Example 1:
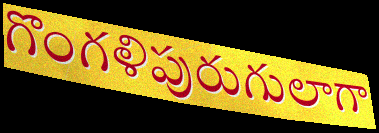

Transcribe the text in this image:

గొంగళిపురుగులాగా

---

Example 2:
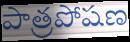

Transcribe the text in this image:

పాత్రపోషణ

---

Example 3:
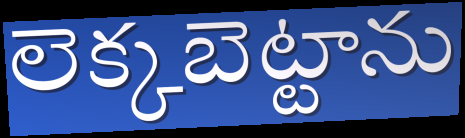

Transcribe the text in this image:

లెక్కబెట్టాను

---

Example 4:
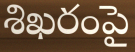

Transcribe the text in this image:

శిఖరంపై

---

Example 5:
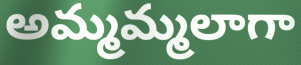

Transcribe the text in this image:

అమ్మమ్మలాగా